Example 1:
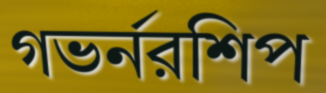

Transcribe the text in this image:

গভর্নরশিপ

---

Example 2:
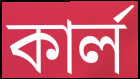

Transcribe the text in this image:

কার্ল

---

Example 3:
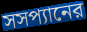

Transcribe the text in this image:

সসপ্যানের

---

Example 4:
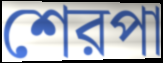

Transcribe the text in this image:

শেরপা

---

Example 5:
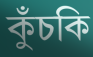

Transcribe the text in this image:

কুঁচকি